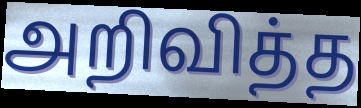
அறிவித்த